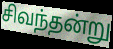
சிவந்தன்று